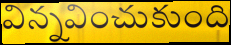
విన్నవించుకుంది